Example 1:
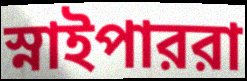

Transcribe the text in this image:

স্নাইপাররা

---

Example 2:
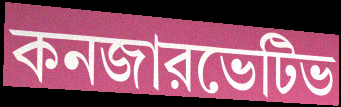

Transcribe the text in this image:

কনজারভেটিভ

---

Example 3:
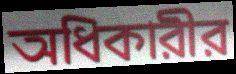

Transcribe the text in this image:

অধিকারীর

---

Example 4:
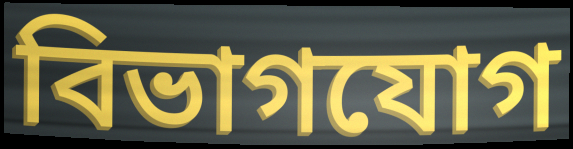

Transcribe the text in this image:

বিভাগযোগ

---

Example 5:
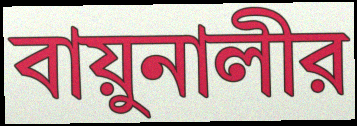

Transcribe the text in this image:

বায়ুনালীর